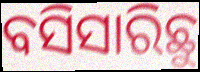
ବସିସାରିଛୁ